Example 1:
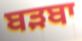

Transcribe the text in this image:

ਬੜਬਾ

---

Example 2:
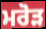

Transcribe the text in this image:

ਮਰੋੜ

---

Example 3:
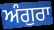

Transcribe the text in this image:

ਅੰਗੁਰਾ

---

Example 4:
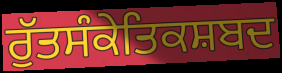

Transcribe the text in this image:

ਰੁੱਤਸੰਕੇਤਿਕਸ਼ਬਦ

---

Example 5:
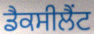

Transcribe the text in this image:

ਡੈਕਸੀਲੈਂਟ